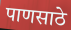
पाणसाठे